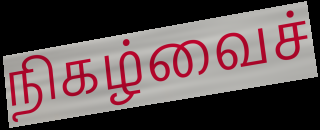
நிகழ்வைச்